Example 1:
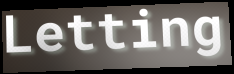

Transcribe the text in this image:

Letting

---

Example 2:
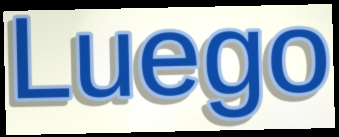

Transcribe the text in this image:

Luego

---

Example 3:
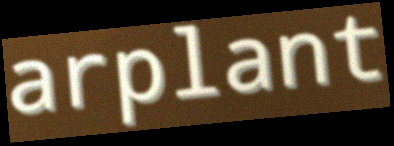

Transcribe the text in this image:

arplant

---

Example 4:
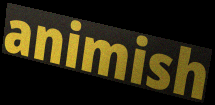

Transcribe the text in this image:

animish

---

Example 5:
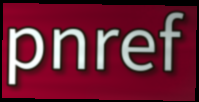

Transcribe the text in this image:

pnref